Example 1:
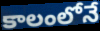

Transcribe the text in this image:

కాలంలోనే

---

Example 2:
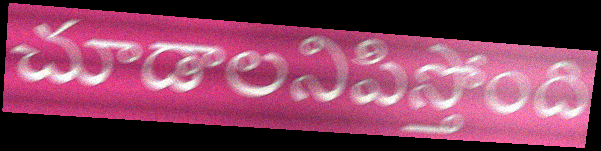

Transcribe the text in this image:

చూడాలనిపిస్తోంది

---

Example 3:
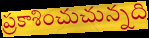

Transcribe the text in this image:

ప్రకాశించుచున్నది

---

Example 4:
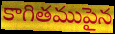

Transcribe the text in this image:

కాగితముపైన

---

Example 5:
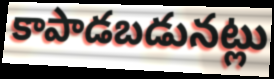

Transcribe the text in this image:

కాపాడబడునట్లు